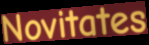
Novitates